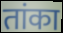
तांका